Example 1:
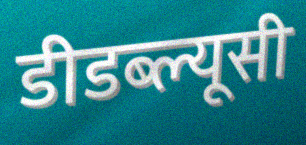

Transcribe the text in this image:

डीडब्ल्यूसी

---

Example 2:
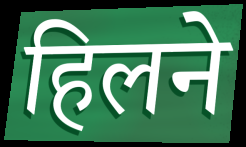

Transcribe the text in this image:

हिलने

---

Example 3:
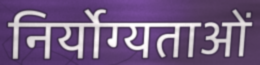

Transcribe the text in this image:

निर्योग्यताओं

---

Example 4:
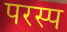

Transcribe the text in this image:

परस्प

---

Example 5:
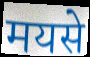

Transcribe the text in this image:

मयसे